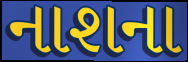
નાશના